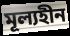
মূল্যহীন